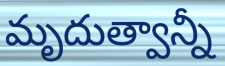
మృదుత్వాన్నీ